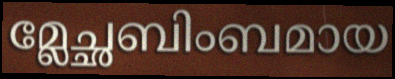
മ്ലേച്ഛബിംബമായ